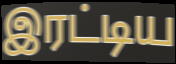
இரட்டிய